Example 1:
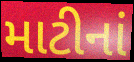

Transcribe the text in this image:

માટીનાં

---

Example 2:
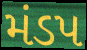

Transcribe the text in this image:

મંડપ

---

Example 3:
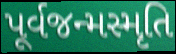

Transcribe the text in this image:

પૂર્વજન્મસ્મૃતિ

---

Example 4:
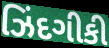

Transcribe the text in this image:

ઝિંદગીકી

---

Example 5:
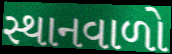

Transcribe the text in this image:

સ્થાનવાળો